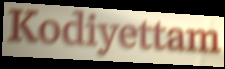
Kodiyettam